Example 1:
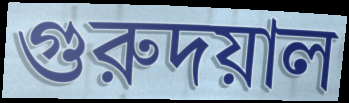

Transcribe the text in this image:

গুরুদয়াল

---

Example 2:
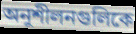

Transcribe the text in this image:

অনুশীলনগুলিকে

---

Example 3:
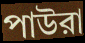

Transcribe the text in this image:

পাউরা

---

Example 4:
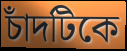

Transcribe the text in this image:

চাঁদটিকে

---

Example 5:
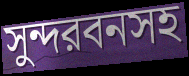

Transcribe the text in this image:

সুন্দরবনসহ